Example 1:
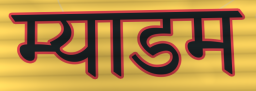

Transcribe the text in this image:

म्याडम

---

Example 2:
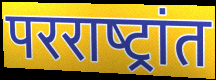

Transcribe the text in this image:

परराष्ट्रांत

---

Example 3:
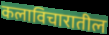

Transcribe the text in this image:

कलाविचारातील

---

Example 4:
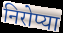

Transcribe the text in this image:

निरोप्या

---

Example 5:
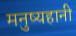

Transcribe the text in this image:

मनुष्यहानी